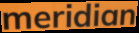
meridian